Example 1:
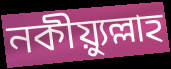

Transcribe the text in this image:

নকীয়্যুল্লাহ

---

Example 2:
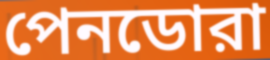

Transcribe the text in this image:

পেনডোরা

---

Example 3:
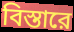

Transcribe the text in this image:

বিস্তারে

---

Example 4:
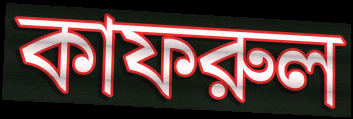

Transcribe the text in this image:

কাফরুল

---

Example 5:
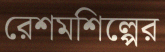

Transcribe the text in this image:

রেশমশিল্পের